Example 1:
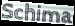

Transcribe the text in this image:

Schima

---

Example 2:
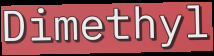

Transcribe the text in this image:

Dimethyl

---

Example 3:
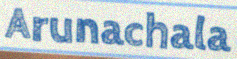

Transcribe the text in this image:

Arunachala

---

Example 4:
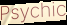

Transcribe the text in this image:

Psychic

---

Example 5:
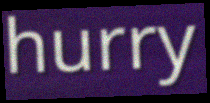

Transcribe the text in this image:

hurry